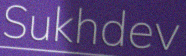
Sukhdev